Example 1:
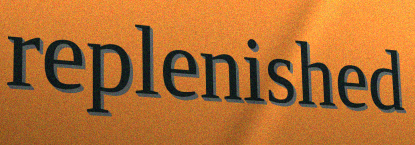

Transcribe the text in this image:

replenished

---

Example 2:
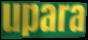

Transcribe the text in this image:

upara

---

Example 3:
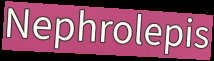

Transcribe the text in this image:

Nephrolepis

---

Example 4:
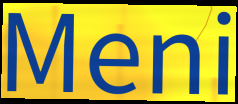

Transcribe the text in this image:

Meni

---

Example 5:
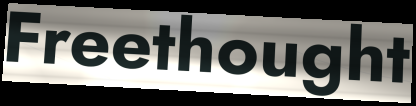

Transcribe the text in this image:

Freethought